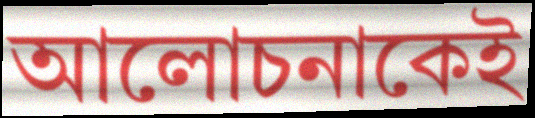
আলোচনাকেই